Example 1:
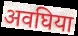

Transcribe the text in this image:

अवघिया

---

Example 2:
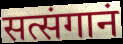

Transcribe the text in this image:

सत्संगानं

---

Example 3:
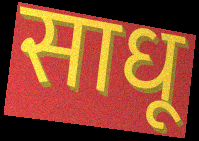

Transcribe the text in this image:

साधू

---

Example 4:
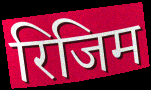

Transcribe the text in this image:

रिजिम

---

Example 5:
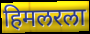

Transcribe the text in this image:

हिमलरला